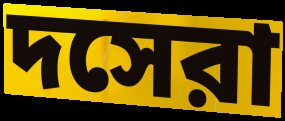
দসেরা